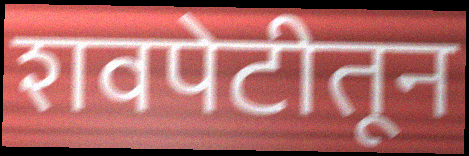
शवपेटीतून